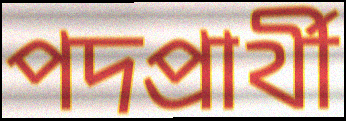
পদপ্রার্থী